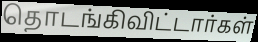
தொடங்கிவிட்டார்கள்